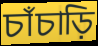
চাঁচাড়ি